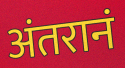
अंतरानं